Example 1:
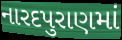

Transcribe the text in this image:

નારદપુરાણમાં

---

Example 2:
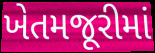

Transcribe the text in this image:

ખેતમજૂરીમાં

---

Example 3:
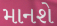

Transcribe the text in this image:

માનશે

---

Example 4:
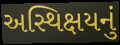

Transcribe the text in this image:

અસ્થિક્ષયનું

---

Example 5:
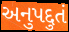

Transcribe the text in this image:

અનુપદ્દુતં